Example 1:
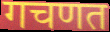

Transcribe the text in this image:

गचणत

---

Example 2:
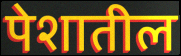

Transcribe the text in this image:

पेशातील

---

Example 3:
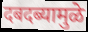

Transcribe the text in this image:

दबदब्यामुळे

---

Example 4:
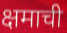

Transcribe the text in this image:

क्षमाची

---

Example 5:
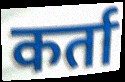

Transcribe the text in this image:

कर्ता